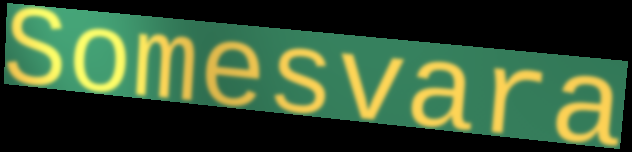
Somesvara